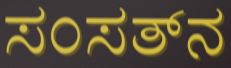
ಸಂಸತ್‌ನ